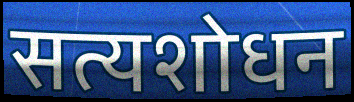
सत्यशोधन